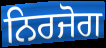
ਨਿਰਜੋਗ